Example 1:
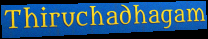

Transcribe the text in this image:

Thiruchadhagam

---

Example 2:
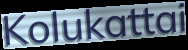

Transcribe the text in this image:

Kolukattai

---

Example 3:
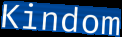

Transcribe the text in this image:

Kindom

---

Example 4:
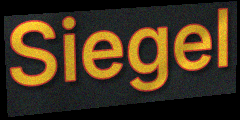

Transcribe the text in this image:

Siegel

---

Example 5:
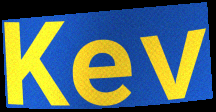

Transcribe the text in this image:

Kev